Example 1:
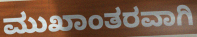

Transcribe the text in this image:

ಮುಖಾಂತರವಾಗಿ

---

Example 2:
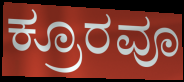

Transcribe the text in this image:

ಕ್ರೂರವೂ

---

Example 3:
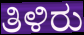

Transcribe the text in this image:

ತಿಳಿರು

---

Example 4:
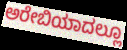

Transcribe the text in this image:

ಅರೇಬಿಯಾದಲ್ಲೂ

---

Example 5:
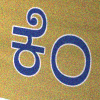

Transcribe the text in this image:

ಕೆಂ